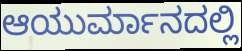
ಆಯುರ್ಮಾನದಲ್ಲಿ